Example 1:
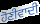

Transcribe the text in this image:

ਹੋਣੀਵਾਦੀ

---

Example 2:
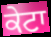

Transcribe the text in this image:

ਕੇਟਾ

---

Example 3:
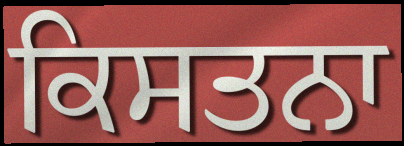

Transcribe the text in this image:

ਕਿਸਤਨਾ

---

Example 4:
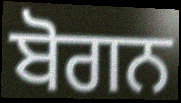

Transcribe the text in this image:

ਬੋਗਨ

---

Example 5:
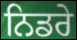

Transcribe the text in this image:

ਨਿਡਰੇ